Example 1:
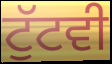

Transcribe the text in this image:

ਟੁੱਟਵੀ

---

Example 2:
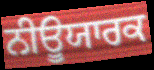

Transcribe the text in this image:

ਨੀਊਯਾਰਕ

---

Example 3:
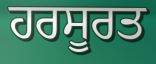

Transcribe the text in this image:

ਹਰਸੂਰਤ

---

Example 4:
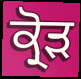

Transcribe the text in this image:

ਕ੍ਰੋੜ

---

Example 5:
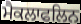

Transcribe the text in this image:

ਮੈਕਲਾਫਲਿਨ